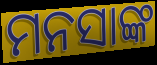
ମନସାଙ୍କ